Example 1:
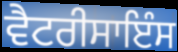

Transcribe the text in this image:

ਵੈਟਰੀਸਾਇੰਸ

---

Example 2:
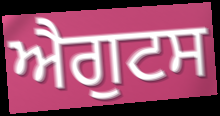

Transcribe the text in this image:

ਐਗੁਟਸ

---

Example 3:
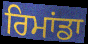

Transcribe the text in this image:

ਰਿਮਾਂਡਾ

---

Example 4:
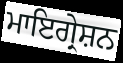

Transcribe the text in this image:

ਮਾਇਗ੍ਰੇਸ਼ਨ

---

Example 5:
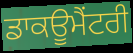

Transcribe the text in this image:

ਡਾਕਊਮੈਂਟਰੀ